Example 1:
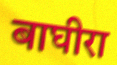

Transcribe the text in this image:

बाघीरा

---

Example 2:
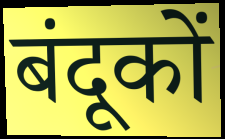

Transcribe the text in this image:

बंदूकों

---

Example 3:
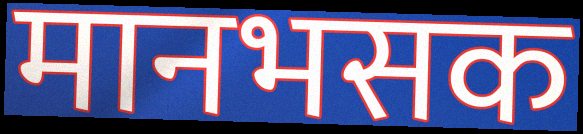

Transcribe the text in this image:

मानभसक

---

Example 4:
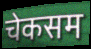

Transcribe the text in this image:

चेकसम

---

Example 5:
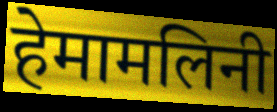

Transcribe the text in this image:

हेमामलिनी